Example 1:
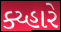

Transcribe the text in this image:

ક્ય્હારે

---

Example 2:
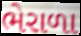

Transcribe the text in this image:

ભેરાળા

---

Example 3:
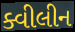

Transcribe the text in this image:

ક્વીલીન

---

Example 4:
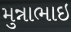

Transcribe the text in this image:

મુન્નાભાઇ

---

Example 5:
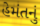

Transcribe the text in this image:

હેમંતનું